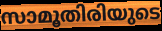
സാമൂതിരിയുടെ